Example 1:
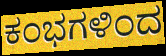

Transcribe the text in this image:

ಕಂಭಗಳಿಂದ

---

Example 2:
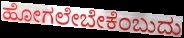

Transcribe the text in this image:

ಹೋಗಲೇಬೇಕೆಂಬುದು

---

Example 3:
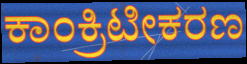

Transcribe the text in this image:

ಕಾಂಕ್ರಿಟೀಕರಣ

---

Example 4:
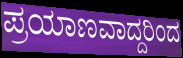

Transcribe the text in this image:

ಪ್ರಯಾಣವಾದ್ದರಿಂದ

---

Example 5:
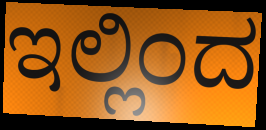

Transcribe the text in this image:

ಇಲ್ಲಿಂದ